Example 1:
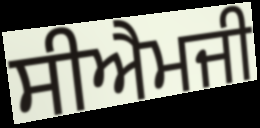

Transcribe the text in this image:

ਸੀਐਮਜੀ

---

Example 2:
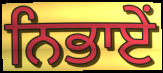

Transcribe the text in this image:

ਨਿਭਾਏਂ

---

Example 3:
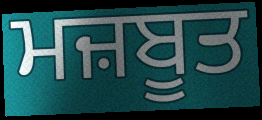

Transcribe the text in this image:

ਮਜ਼ਬੂਤ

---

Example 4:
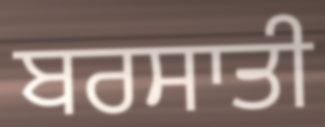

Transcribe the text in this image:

ਬਰਸਾਤੀ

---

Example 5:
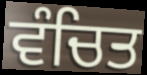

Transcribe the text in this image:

ਵੰਚਿਤ